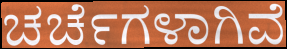
ಚರ್ಚೆಗಳಾಗಿವೆ